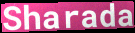
Sharada